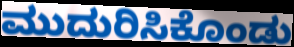
ಮುದುರಿಸಿಕೊಂಡು